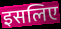
इसलिए